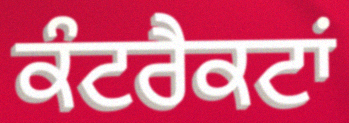
ਕੰਟਰੈਕਟਾਂ